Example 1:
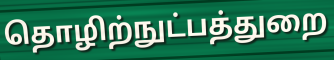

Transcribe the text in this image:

தொழிற்நுட்பத்துறை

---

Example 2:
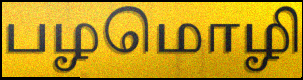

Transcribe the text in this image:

பழமொழி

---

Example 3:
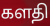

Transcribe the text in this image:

களதி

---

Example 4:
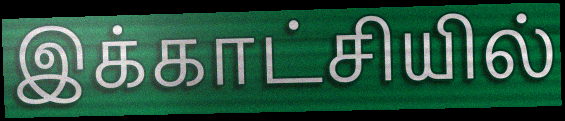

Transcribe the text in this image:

இக்காட்சியில்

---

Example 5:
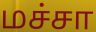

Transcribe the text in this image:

மச்சா